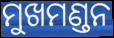
ମୁଖମଣ୍ଡନ